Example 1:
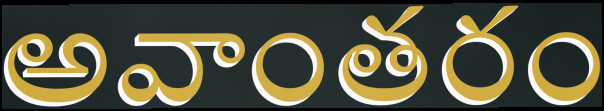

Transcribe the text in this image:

అవాంతరం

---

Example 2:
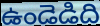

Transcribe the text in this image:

ఉండెడిది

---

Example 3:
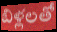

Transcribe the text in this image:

బిళ్లలతో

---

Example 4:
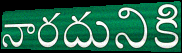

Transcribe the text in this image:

నారదునికి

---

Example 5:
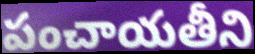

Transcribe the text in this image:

పంచాయతీని